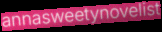
annasweetynovelist